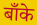
बाँके